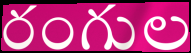
రంగుల